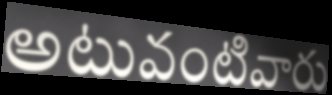
అటువంటివారు